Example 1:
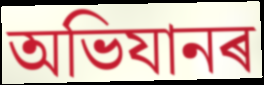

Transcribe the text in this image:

অভিযানৰ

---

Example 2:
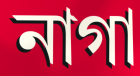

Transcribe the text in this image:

নাগা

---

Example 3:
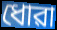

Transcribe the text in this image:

ধোৱা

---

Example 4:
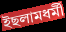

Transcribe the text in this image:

ইছলামধৰ্মী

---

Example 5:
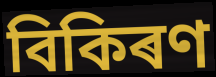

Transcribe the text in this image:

বিকিৰণ